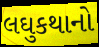
લઘુકથાનો